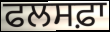
ਫਲਸਫ਼ਾ